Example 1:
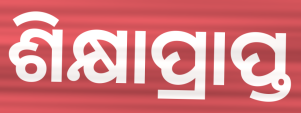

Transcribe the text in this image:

ଶିକ୍ଷାପ୍ରାପ୍ତ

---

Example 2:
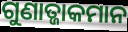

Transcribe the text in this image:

ଗୁଣାତ୍ଜାକମାନ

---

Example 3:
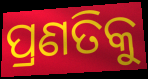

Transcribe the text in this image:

ପ୍ରଣତିକୁ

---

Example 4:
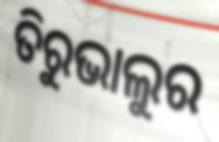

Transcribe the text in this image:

ତିରୁଭାଲୁର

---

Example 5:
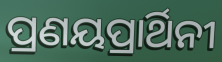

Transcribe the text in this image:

ପ୍ରଣୟପ୍ରାର୍ଥିନୀ